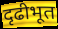
दृढीभूत